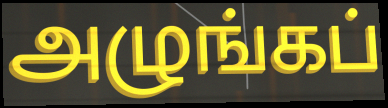
அழுங்கப்